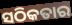
ସଠିକତାର